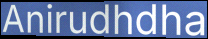
Anirudhdha